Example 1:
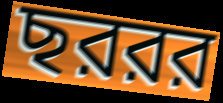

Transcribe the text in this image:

ছররর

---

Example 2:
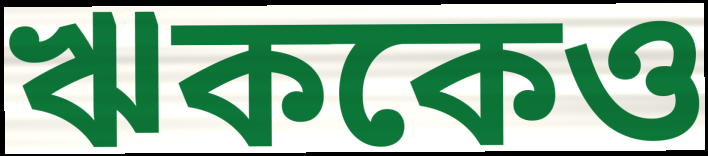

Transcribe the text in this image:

ঋককেও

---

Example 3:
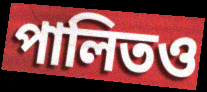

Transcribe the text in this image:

পালিতও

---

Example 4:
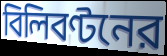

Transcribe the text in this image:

বিলিবণ্টনের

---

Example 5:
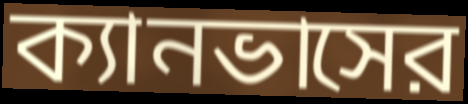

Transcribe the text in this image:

ক্যানভাসের